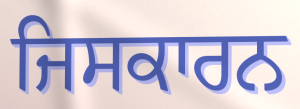
ਜਿਸਕਾਰਨ